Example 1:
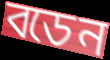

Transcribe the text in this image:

বডেন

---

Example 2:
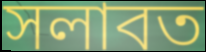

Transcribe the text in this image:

সলাবত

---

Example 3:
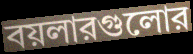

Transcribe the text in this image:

বয়লারগুলোর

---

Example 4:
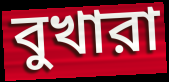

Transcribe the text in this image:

বুখারা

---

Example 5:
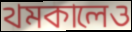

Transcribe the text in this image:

থমকালেও